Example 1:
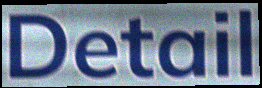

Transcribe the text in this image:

Detail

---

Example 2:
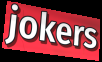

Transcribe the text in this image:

jokers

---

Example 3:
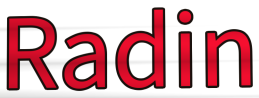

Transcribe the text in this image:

Radin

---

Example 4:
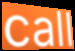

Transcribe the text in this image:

call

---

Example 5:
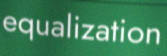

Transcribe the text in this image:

equalization